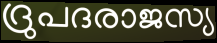
ദ്രുപദരാജസ്യ